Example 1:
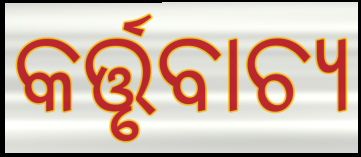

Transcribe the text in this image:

କର୍ତ୍ତୃବାଚ୍ୟ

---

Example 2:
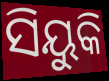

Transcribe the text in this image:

ସିୟୁକି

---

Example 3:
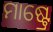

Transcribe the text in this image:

ମାଷ୍ଟ୍ରେ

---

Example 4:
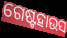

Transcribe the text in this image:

ଗେଷ୍ଟହାଉସ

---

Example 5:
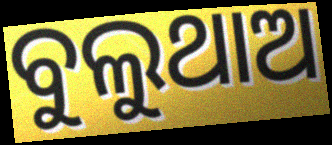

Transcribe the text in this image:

ବୁଲୁଥାଅ